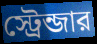
স্ট্রেন্জার